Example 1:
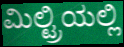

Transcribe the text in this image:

ಮಿಲ್ಟ್ರಿಯಲ್ಲಿ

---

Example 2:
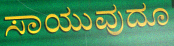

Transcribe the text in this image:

ಸಾಯುವುದೂ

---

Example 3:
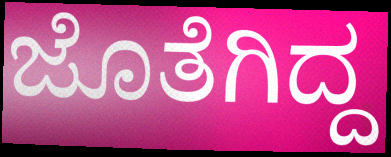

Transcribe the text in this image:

ಜೊತೆಗಿದ್ದ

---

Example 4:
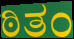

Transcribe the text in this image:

ಠಿತಂ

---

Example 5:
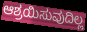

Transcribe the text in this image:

ಆಶ್ರಯಿಸುವುದಿಲ್ಲ